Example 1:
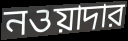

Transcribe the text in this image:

নওয়াদার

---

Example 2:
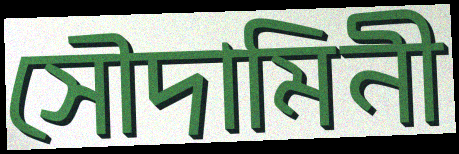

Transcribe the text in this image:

সৌদামিনী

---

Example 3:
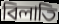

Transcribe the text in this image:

বিলাতি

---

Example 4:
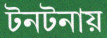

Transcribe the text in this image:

টনটনায়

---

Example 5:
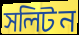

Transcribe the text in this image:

সলিটন